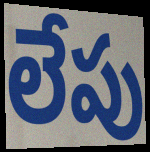
లేపు